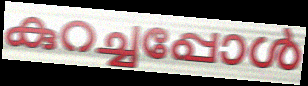
കുറച്ചപ്പോൾ